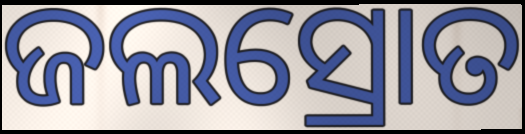
ଜଲସ୍ରୋତ